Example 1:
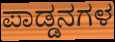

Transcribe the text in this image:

ಪಾಡ್ಡನಗಳ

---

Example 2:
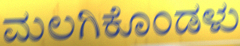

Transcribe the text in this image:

ಮಲಗಿಕೊಂಡಳು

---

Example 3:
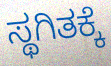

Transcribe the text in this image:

ಸ್ಥಗಿತಕ್ಕೆ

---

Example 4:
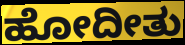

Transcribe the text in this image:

ಹೋದೀತು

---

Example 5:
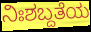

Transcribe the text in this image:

ನಿಃಶಬ್ದತೆಯ